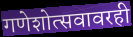
गणेशोत्सवावरही